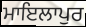
ਮਾਇਲਾਪੁਰ